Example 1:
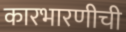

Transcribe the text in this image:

कारभारणीची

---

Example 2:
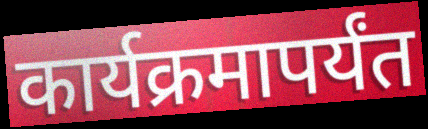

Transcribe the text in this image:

कार्यक्रमापर्यंत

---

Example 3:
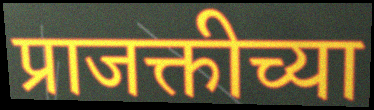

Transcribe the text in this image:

प्राजक्तीच्या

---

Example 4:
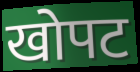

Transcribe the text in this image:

खोपट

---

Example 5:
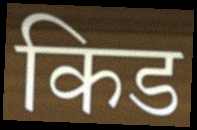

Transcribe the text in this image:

किड